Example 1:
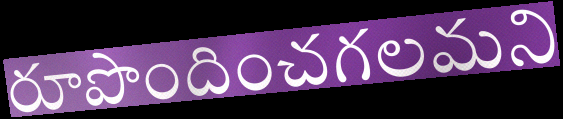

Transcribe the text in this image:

రూపొందించగలమని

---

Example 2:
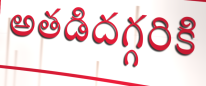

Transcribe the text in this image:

అతడిదగ్గరికి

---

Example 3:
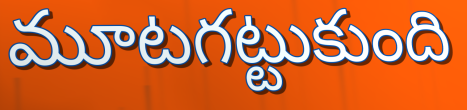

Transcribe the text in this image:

మూటగట్టుకుంది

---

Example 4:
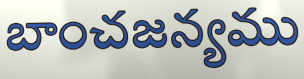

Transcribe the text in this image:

బాంచజన్యము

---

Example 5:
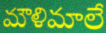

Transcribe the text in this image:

మౌళిమాలే